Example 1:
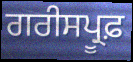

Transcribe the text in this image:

ਗਰੀਸਪ੍ਰੂਫ਼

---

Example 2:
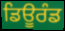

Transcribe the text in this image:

ਡਿਊਰੰਡ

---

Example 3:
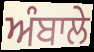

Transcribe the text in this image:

ਅੰਬਾਲੇ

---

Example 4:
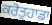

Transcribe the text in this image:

ਕਰੋਤੁਹਾਡਾ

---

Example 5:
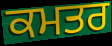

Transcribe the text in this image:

ਕਮਤਰ